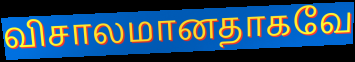
விசாலமானதாகவே